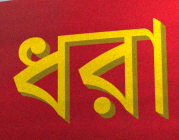
ধরা